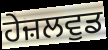
ਹੇਜ਼ਲਵੁਡ